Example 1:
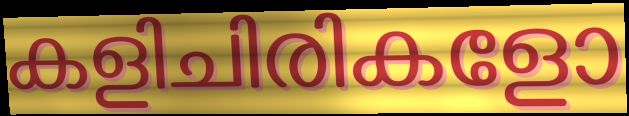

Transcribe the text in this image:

കളിചിരികളോ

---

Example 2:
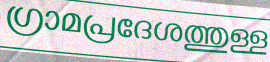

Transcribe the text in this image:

ഗ്രാമപ്രദേശത്തുള്ള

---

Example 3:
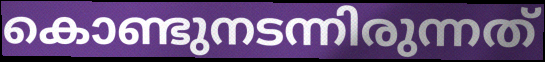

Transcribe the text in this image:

കൊണ്ടുനടന്നിരുന്നത്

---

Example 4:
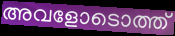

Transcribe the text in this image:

അവളോടൊത്ത്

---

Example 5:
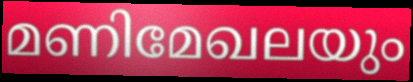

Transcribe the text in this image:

മണിമേഖലയും